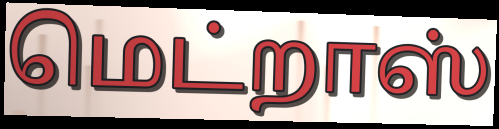
மெட்றாஸ்